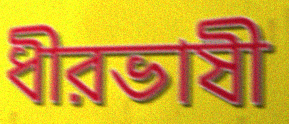
ধীরভাষী